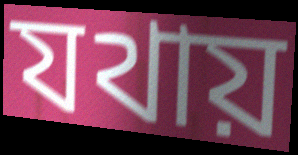
যথায়